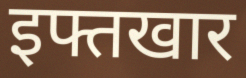
इफ्तखार